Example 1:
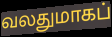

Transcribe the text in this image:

வலதுமாகப்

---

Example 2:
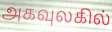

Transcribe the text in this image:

அகவுலகில்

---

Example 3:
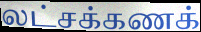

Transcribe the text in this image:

லட்சக்கணக்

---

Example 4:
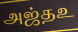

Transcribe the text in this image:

அஜ்தஉ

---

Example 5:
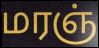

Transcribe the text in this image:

மரஞ்